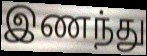
இணந்து